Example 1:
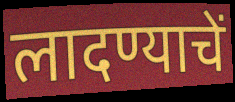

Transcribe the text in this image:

लादण्याचें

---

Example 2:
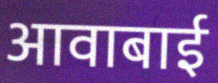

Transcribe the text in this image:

आवाबाई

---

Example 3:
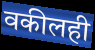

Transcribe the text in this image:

वकीलही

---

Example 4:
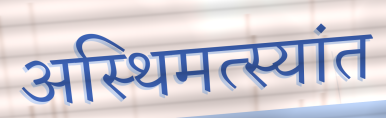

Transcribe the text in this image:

अस्थिमत्स्यांत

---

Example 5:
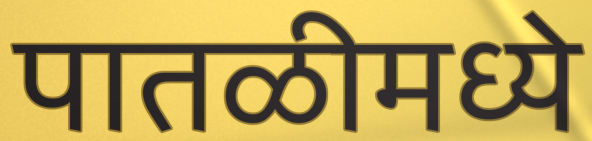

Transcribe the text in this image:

पातळीमध्ये